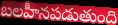
బలహీనపడుతుంది